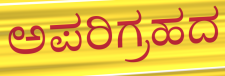
ಅಪರಿಗ್ರಹದ